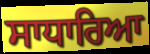
ਸਾਧਾਰਿਆ